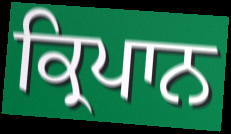
ਕ੍ਰਿਪਾਨ